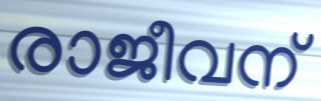
രാജീവന്